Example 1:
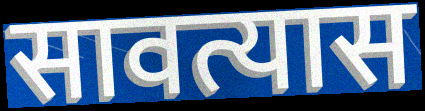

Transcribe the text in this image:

सावत्यास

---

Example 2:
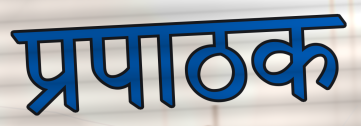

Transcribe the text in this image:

प्रपाठक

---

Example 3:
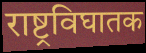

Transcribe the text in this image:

राष्ट्रविघातक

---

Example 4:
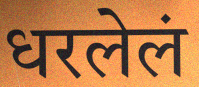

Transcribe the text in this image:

धरलेलं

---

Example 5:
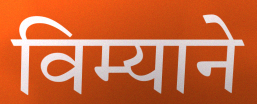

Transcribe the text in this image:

विम्याने